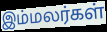
இம்மலர்கள்